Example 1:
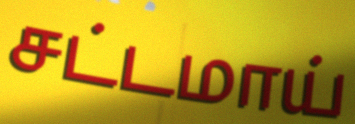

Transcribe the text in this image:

சட்டமாய்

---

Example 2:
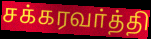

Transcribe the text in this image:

சக்கரவர்த்தி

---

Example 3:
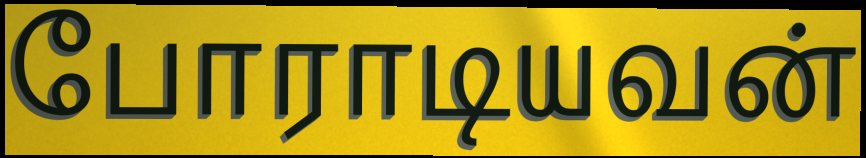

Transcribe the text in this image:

போராடியவன்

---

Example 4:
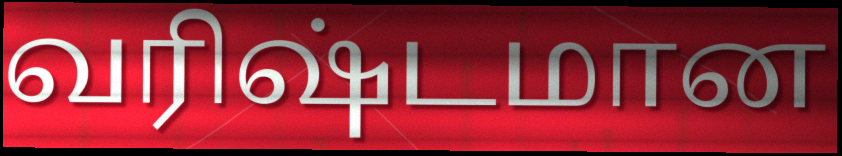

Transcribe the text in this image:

வரிஷ்டமான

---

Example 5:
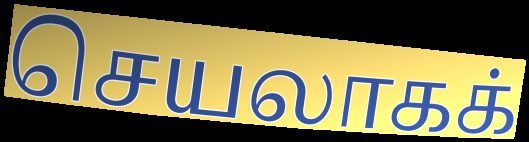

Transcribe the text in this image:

செயலாகக்